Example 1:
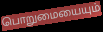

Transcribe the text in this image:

பொறுமையையும்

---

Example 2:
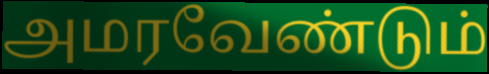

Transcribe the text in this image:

அமரவேண்டும்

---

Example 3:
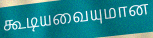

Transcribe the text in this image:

கூடியவையுமான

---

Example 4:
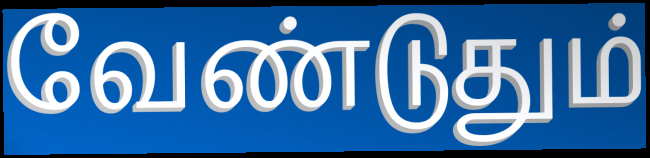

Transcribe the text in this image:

வேண்டுதும்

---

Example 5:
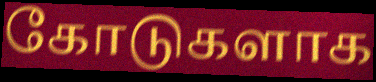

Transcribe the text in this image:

கோடுகளாக